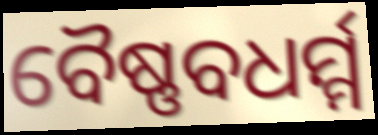
ବୈଷ୍ଣବଧର୍ମ୍ମ